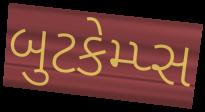
બુટકેમ્પ્સ